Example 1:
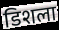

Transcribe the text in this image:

डिशला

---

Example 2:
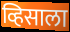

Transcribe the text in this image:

व्हिसाला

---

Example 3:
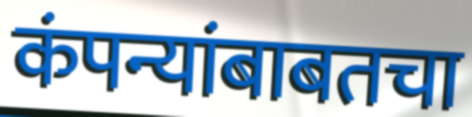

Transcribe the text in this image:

कंपन्यांबाबतचा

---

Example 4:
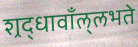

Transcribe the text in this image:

श्रद्धावाँल्लभते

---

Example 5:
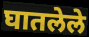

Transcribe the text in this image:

घातलेले